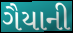
ગૈયાની